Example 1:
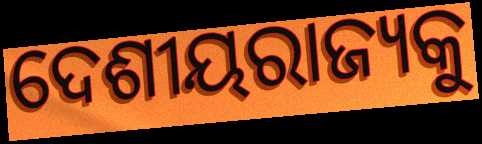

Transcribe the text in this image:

ଦେଶୀୟରାଜ୍ୟକୁ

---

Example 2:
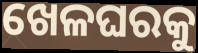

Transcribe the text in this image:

ଖେଳଘରକୁ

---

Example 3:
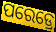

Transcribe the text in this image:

ପରେଡ୍ରେ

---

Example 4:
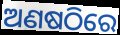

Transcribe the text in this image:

ଅଣଷଠିରେ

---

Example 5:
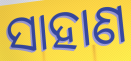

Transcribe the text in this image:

ସାହାଣ